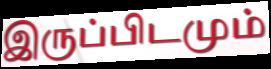
இருப்பிடமும்